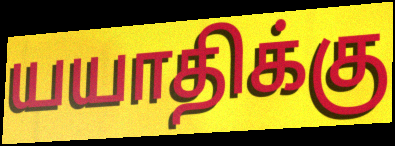
யயாதிக்கு